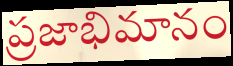
ప్రజాభిమానం